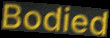
Bodied